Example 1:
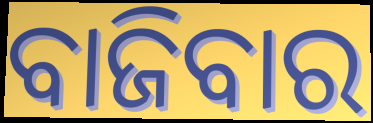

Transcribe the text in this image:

ବାଜିବାର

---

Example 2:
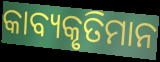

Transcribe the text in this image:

କାବ୍ୟକୃତିମାନ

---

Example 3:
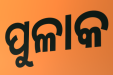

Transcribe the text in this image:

ପୁଳାକ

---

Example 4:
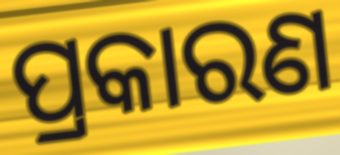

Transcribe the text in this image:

ପ୍ରକାରଣ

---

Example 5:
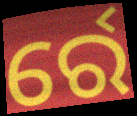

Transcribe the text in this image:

ର୍ରେ